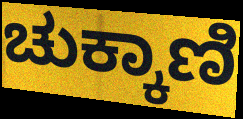
ಚುಕ್ಕಾಣಿ